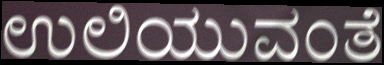
ಉಲಿಯುವಂತೆ